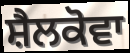
ਸ਼ੈਲਕੋਵਾ